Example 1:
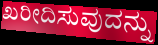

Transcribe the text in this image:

ಖರೀದಿಸುವುದನ್ನು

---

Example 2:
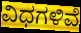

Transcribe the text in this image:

ವಿಧಗಳಿವೆ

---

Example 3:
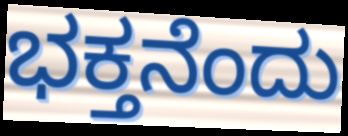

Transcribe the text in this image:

ಭಕ್ತನೆಂದು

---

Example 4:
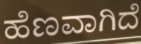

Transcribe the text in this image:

ಹೆಣವಾಗಿದೆ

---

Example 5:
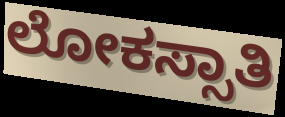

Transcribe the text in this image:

ಲೋಕಸ್ಸಾತಿ